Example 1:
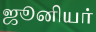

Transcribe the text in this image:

ஜூனியர்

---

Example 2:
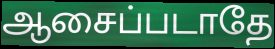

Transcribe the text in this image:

ஆசைப்படாதே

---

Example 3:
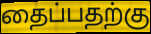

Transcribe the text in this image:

தைப்பதற்கு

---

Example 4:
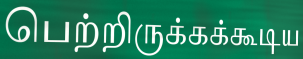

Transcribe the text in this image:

பெற்றிருக்கக்கூடிய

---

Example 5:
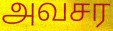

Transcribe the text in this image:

அவசர